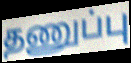
தணுப்பு